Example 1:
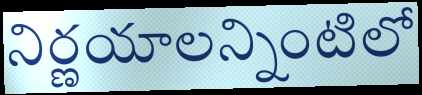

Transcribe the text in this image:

నిర్ణయాలన్నింటిలో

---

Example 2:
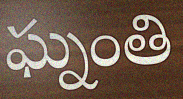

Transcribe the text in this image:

ఘ్నంతి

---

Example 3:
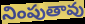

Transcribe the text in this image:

నింపుతావు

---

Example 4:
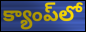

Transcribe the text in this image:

క్యాంప్‌లో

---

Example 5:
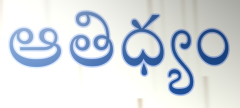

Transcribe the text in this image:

ఆతిధ్యం